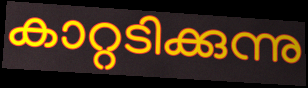
കാറ്റടിക്കുന്നു